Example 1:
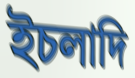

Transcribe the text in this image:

ইচলাদি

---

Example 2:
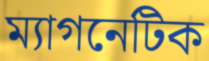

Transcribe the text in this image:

ম্যাগনেটিক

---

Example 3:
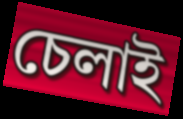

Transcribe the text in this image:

চেলাই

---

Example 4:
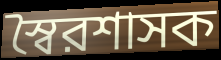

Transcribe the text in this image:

স্বৈরশাসক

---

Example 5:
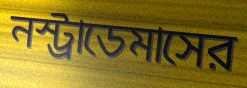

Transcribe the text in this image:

নস্ট্রাডেমাসের